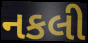
નકલી